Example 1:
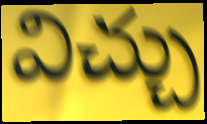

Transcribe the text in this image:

విచ్చు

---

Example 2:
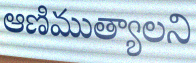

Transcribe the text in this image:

ఆణిముత్యాలని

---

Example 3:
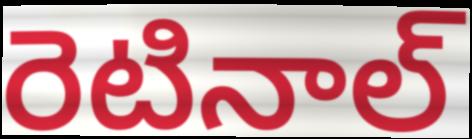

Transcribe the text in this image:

రెటినాల్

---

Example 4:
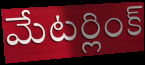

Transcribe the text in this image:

మేటర్లింక్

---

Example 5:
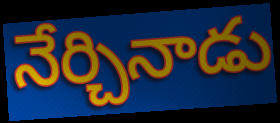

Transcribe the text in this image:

నేర్చినాడు